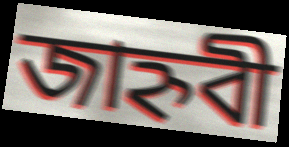
জাহ্নবী